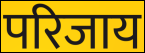
परिजाय